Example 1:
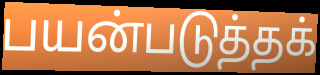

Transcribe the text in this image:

பயன்படுத்தக்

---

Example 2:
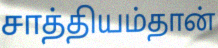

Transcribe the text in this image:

சாத்தியம்தான்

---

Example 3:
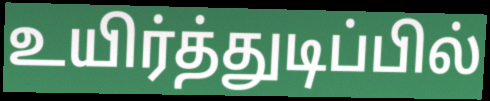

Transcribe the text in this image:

உயிர்த்துடிப்பில்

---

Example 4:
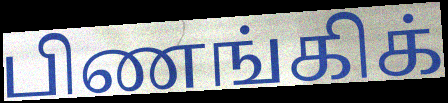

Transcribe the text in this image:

பிணங்கிக்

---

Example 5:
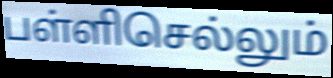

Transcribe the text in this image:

பள்ளிசெல்லும்